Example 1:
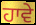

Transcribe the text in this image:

ਹਾਵੇ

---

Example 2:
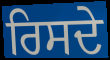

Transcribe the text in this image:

ਰਿਸਦੇ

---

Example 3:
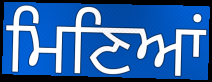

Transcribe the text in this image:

ਮਿਣਿਆਂ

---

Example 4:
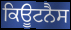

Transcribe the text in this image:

ਕਿਊਟਨੈਸ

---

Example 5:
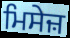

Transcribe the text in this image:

ਮਿਸੇਜ਼